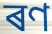
ৰণ